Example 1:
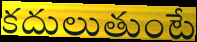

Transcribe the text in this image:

కదులుతుంటే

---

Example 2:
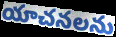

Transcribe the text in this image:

యాచనలను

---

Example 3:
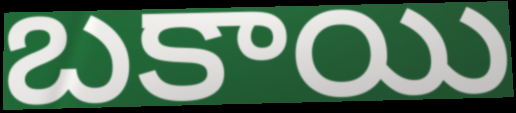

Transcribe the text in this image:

బకాయి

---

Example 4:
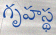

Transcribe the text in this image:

గృహస్థ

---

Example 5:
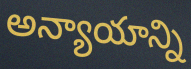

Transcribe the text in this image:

అన్యాయాన్ని